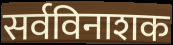
सर्वविनाशक